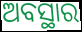
ଅବସ୍ଥାର